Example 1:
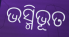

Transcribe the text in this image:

ଭସ୍ମିଭୂତ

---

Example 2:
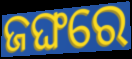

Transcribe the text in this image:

ଜଙ୍ଘରେ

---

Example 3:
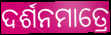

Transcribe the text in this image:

ଦର୍ଶନମାତ୍ରେ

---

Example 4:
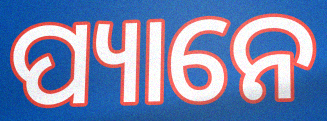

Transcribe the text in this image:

ପ୍ୟାନେ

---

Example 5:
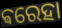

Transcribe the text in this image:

ଵରେହା